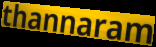
thannaram